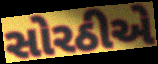
સોરઠીએ